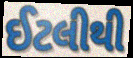
ઈટલીથી